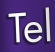
Tel